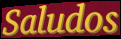
Saludos